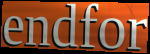
endfor